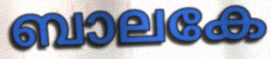
ബാലകേ